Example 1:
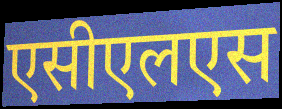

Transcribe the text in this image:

एसीएलएस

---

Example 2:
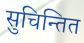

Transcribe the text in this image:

सुचिन्तित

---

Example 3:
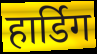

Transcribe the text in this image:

हार्डिग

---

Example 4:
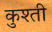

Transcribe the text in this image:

कुश्‍ती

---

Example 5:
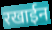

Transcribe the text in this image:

रखाईन